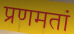
प्रणमतां